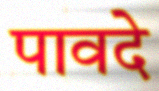
पावदे